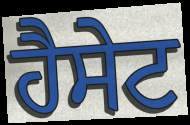
ਹੈਸੇਟ